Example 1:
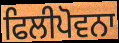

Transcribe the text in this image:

ਫਿਲੀਪੋਵਨਾ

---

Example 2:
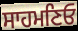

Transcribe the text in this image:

ਸਾਹਮਣਿਓ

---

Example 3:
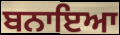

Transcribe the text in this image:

ਬਨਾਇਆ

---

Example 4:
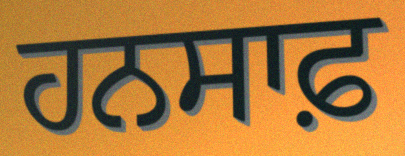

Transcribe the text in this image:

ਹਨਸਾਫ਼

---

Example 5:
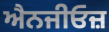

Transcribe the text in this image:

ਐਨਜੀਓਜ਼